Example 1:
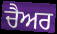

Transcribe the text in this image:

ਚੈਅਰ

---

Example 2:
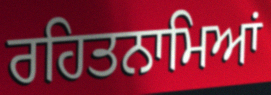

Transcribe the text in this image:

ਰਹਿਤਨਾਮਿਆਂ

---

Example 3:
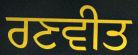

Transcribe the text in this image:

ਰਣਵੀਤ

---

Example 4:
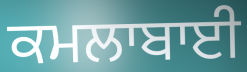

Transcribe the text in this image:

ਕਮਲਾਬਾਈ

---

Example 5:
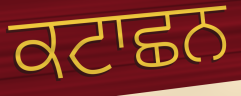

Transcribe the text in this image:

ਕਟਾਛਨ